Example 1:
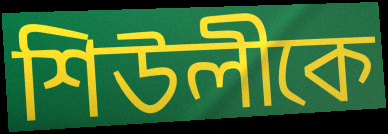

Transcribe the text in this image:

শিউলীকে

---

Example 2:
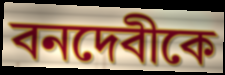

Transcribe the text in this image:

বনদেবীকে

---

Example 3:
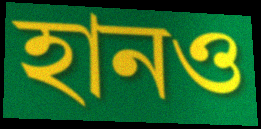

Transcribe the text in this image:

হানও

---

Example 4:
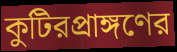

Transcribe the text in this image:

কুটিরপ্রাঙ্গণের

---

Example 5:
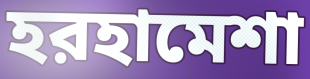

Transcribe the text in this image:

হরহামেশা